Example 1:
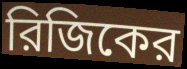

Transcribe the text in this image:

রিজিকের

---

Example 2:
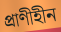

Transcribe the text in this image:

প্রাণীহীন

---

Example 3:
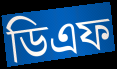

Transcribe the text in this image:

ডিএফ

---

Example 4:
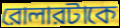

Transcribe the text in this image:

রোলারটাকে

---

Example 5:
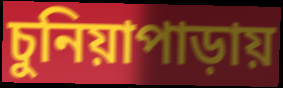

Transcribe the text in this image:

চুনিয়াপাড়ায়